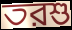
তরশু